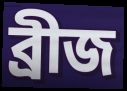
ব্ৰীজ